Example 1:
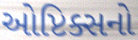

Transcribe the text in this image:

ઓપ્ટિક્સનો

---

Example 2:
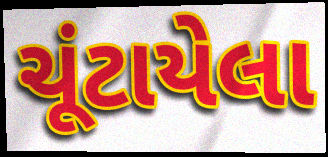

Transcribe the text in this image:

ચૂંટાયેલા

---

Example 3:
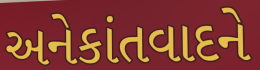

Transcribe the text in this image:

અનેકાંતવાદને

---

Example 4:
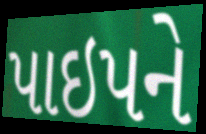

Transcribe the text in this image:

પાઇપને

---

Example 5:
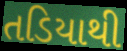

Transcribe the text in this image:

તડિયાથી